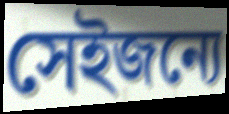
সেইজন্যে